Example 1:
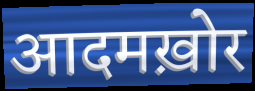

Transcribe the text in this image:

आदमख़ोर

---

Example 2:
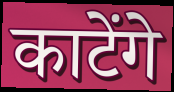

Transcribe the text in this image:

काटेंगे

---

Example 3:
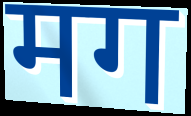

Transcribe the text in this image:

मग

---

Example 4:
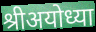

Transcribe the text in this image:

श्रीअयोध्या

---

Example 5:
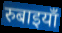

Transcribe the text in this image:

रुबाइयाँ